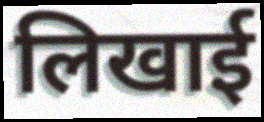
लिखाई